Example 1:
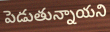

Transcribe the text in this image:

పెడుతున్నాయని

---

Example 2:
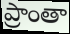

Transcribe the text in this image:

ప్రాంతా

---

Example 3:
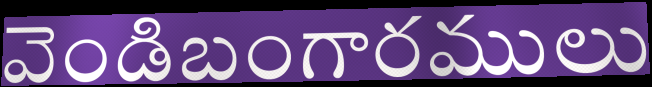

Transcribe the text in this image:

వెండిబంగారములు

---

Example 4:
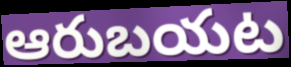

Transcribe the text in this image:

ఆరుబయట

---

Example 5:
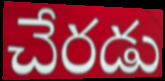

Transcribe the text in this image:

చేరడు